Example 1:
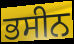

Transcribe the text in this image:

ਭਸੀਨ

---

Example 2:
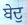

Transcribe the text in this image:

ਬੇਦੁ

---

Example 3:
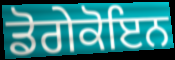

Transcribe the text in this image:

ਡੋਗੇਕੋਇਨ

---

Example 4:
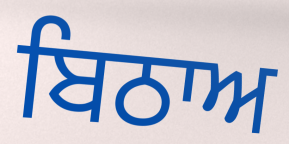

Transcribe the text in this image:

ਬਿਠਾਅ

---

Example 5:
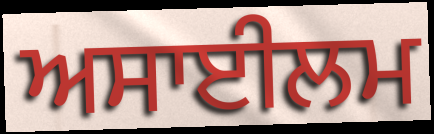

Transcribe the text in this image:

ਅਸਾਈਲਮ